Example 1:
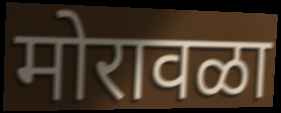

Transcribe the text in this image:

मोरावळा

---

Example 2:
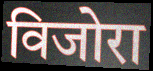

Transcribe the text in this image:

विजोरा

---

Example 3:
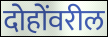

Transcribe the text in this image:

दोहोंवरील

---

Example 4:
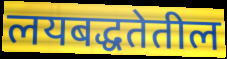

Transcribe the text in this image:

लयबद्धतेतील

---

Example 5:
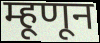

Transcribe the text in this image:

म्हूणून